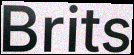
Brits